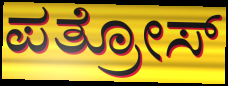
ಪತ್ರೋಸ್